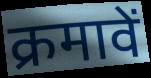
क्रमावें